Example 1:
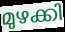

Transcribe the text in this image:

മുഴക്കി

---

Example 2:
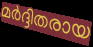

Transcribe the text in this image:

മർദ്ദിതരായ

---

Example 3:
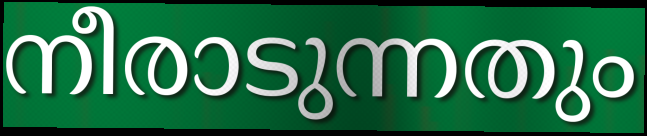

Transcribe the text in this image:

നീരാടുന്നതും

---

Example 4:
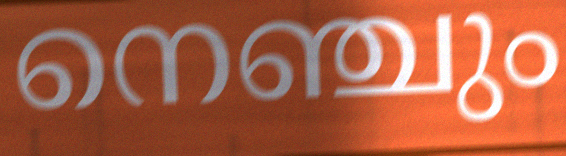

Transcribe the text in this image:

നെഞ്ചും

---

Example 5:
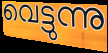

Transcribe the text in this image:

വെട്ടുന്നു